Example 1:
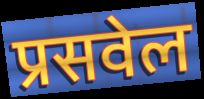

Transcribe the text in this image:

प्रसवेल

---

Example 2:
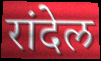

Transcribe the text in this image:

रांदेल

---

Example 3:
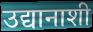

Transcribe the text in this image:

उद्यानाशी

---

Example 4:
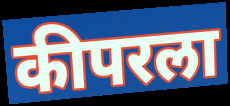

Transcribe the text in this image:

कीपरला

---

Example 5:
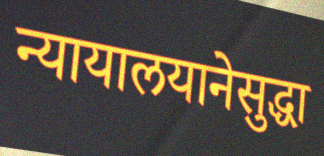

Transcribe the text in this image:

न्यायालयानेसुद्धा